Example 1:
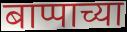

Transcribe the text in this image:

बाप्पाच्या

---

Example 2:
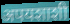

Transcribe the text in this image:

अपयशाशी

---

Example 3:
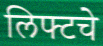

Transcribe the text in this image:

लिफ्टचे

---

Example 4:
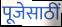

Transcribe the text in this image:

पूजेसाठीं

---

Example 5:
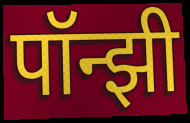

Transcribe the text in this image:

पॉन्झी